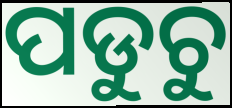
ପଡୁଚୁ